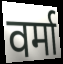
वर्मा